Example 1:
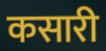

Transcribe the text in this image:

कसारी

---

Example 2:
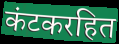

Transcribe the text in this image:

कंटकरहित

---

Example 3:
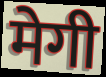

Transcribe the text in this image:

मेगी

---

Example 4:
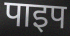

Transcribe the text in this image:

पाइप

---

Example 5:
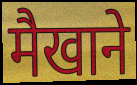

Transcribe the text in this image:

मैखाने